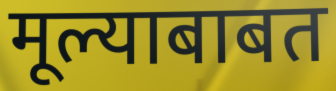
मूल्याबाबत